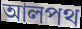
আলপথ